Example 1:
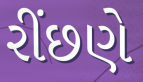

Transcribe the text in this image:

રીંછણે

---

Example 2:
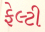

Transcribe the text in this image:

ફેલ્ટી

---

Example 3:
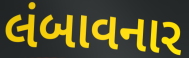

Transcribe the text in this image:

લંબાવનાર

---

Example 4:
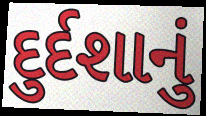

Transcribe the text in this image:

દુર્દશાનું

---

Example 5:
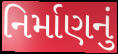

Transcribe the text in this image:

નિર્માણનું